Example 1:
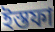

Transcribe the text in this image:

ইস্তফা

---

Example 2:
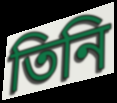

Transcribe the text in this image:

তিনি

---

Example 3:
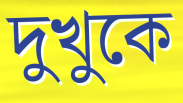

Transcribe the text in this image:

দুখুকে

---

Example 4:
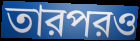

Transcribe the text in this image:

তারপরও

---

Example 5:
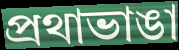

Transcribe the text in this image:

প্রথাভাঙা